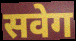
सवेग